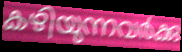
കഴിയുന്നവർക്കു